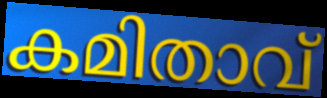
കമിതാവ്